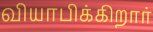
வியாபிக்கிறார்